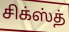
சிக்ஸ்த்